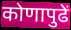
कोणापुढें